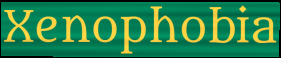
Xenophobia